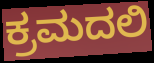
ಕ್ರಮದಲಿ